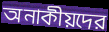
অনাকীয়দের